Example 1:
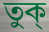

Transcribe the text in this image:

তুক্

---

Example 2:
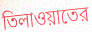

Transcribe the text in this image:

তিলাওয়াতের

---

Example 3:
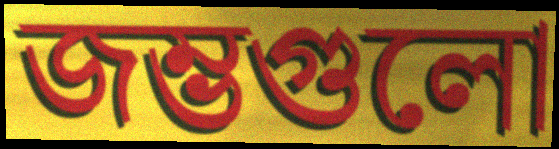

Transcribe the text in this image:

জম্ভগুলো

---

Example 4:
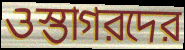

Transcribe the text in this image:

ওস্তাগরদের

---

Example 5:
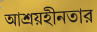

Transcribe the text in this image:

আশ্রয়হীনতার